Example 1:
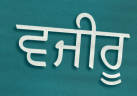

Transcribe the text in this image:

ਵਜੀਰੂ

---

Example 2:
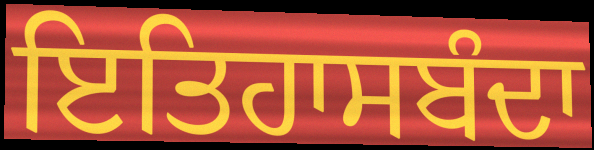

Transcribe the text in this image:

ਇਤਿਹਾਸਬੰਦਾ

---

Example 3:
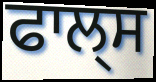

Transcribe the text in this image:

ਫਾਲ੍ਸ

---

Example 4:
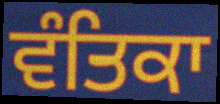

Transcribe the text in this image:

ਵੰਤਿਕਾ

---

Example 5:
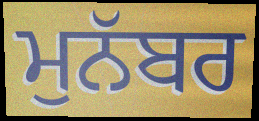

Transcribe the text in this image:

ਮੁਨੱਬਰ